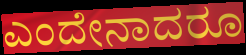
ಎಂದೇನಾದರೂ